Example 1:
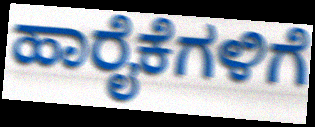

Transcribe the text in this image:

ಹಾರೈಕೆಗಳಿಗೆ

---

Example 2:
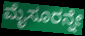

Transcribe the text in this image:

ಮೈಸೂರನ್ನೇ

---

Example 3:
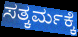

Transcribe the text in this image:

ಸತ್ಕರ್ಮಕ್ಕೆ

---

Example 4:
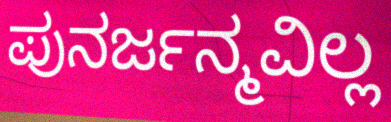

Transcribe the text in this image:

ಪುನರ್ಜನ್ಮವಿಲ್ಲ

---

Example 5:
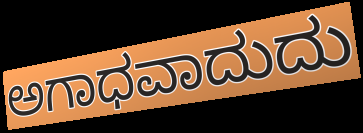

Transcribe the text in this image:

ಅಗಾಧವಾದುದು